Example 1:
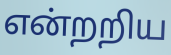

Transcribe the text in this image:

என்றறிய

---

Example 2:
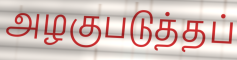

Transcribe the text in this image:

அழகுபடுத்தப்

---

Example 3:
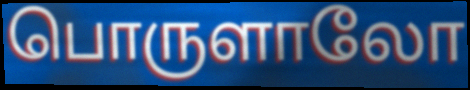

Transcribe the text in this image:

பொருளாலோ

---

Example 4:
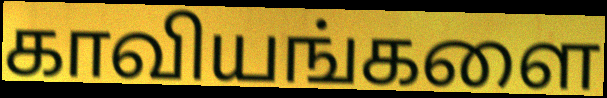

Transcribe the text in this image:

காவியங்களை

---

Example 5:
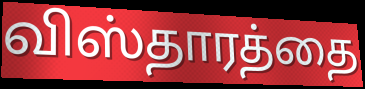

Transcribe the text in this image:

விஸ்தாரத்தை